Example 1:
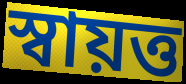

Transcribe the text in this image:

স্বায়ত্ত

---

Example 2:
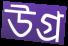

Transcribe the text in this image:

উগ্ৰ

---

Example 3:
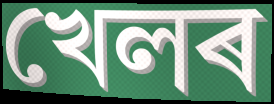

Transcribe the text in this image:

খেলৰ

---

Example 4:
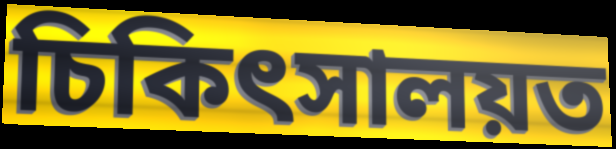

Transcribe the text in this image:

চিকিৎসালয়ত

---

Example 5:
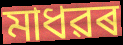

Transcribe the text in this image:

মাধৱৰ